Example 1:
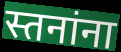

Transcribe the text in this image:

स्तनांना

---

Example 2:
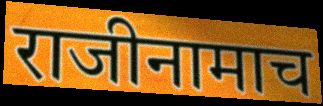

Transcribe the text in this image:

राजीनामाच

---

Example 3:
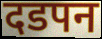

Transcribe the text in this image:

दडपन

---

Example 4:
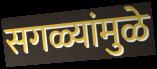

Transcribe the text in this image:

सगळ्यांमुळे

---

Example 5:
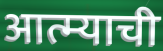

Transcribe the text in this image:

आत्म्याची